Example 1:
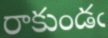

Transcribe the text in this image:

రాకుండఁ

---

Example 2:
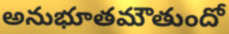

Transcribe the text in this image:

అనుభూతమౌతుందో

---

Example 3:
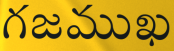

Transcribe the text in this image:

గజముఖ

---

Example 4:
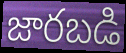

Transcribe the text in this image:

జారబడి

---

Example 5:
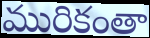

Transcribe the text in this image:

మురికంతా